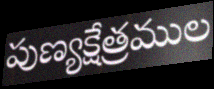
పుణ్యక్షేత్రముల